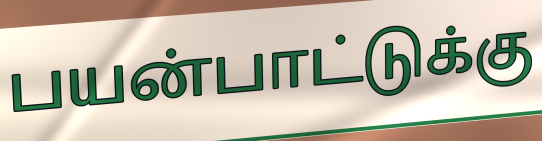
பயன்பாட்டுக்கு